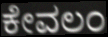
ಕೇವಲಂ